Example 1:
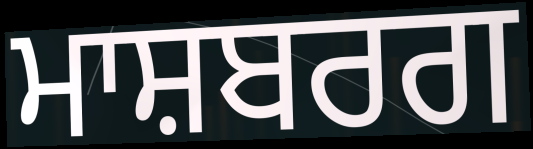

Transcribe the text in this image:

ਮਾਸ਼ਬਰਗ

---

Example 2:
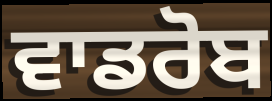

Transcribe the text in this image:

ਵਾਡਰੋਬ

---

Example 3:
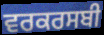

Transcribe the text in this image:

ਵਰਕਰਸਬੀ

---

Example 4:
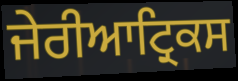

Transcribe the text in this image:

ਜੇਰੀਆਟ੍ਰਿਕਸ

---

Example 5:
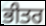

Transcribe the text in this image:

ਭੀਤਰ